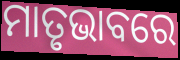
ମାତୃଭାବରେ